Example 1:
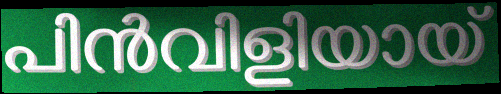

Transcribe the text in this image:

പിൻവിളിയായ്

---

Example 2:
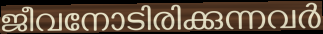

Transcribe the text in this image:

ജീവനോടിരിക്കുന്നവർ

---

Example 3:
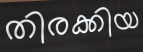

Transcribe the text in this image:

തിരക്കിയ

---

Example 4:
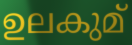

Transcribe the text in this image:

ഉലകുമ്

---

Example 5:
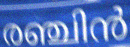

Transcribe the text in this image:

രഞ്ചിൻ